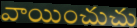
వాయించుచు